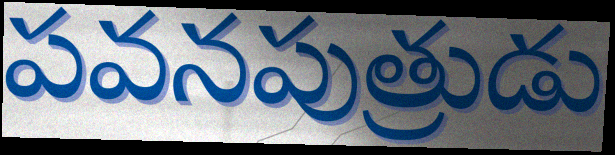
పవనపుత్రుడు